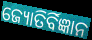
ଜ୍ୟୋତିର୍ବିଜ୍ଞାନ